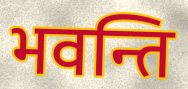
भवन्ति